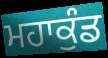
ਮਹਾਕੁੰਡ